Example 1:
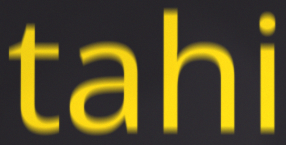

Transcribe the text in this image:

tahi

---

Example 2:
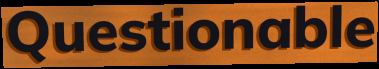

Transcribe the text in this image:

Questionable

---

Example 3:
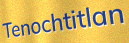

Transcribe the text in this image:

Tenochtitlan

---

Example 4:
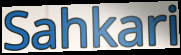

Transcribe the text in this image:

Sahkari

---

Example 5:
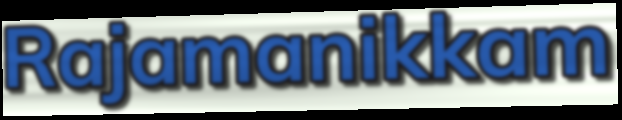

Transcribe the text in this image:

Rajamanikkam